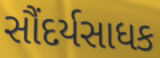
સૌંદર્યસાધક